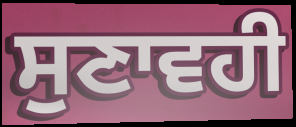
ਸੁਣਾਵਹੀ